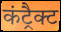
कंट्रैक्ट